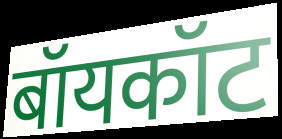
बॉयकॉट